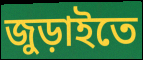
জুড়াইতে